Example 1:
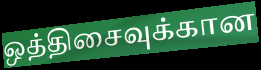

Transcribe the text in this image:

ஒத்திசைவுக்கான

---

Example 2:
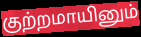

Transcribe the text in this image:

குற்றமாயினும்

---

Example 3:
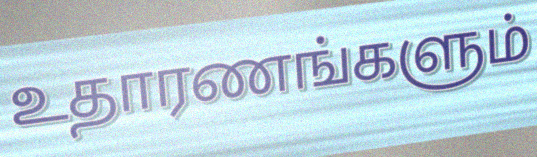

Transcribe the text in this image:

உதாரணங்களும்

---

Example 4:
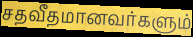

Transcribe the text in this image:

சதவீதமானவர்களும்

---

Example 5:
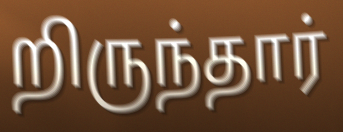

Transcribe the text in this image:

றிருந்தார்